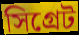
সিগ্রেট